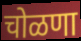
चोळणा